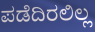
ಪಡೆದಿರಲಿಲ್ಲ